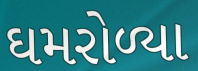
ઘમરોળ્યા